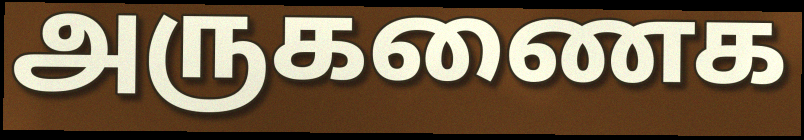
அருகணைக